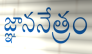
జ్ఞాననేత్రం